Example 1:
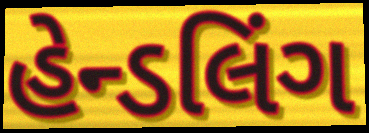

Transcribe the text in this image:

હેન્ડલિંગ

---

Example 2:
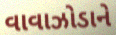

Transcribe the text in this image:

વાવાઝોડાને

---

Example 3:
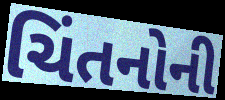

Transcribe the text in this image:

ચિંતનોની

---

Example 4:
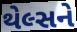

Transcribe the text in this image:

થેલ્સને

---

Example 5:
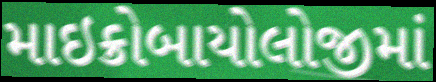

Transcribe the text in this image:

માઇક્રોબાયોલોજીમાં